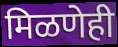
मिळणेही